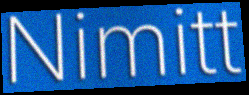
Nimitt